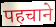
पहचाने